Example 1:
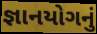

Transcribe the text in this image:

જ્ઞાનયોગનું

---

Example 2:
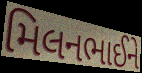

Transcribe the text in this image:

મિલનભાઈને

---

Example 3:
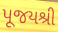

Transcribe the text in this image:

પૂજયશ્રી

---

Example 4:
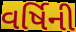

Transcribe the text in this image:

વર્ષિની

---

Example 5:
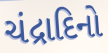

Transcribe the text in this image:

ચંદ્રાદિનો